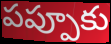
పప్పూకు